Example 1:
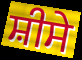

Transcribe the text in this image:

ਸ਼ੀਸੇ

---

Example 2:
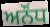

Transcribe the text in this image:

ਅਨੌਂਧ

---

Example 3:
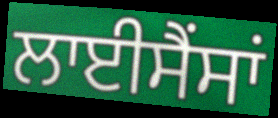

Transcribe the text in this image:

ਲਾਈਸੈਂਸਾਂ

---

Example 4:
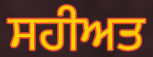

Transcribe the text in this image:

ਸਹੀਅਤ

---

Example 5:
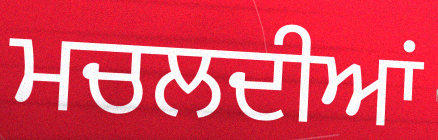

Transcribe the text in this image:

ਮਚਲਦੀਆਂ